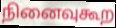
நினைவுகூற